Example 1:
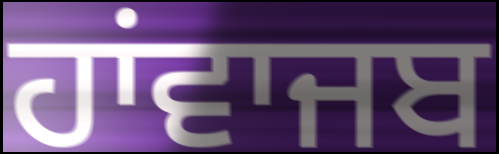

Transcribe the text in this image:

ਹਾਂਵਾਜਬ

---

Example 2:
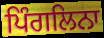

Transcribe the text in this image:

ਪਿੰਗਲਿਨਾ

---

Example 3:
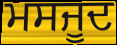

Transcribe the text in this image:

ਮਸਜੂਦ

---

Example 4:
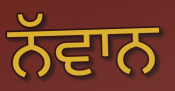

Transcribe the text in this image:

ਨੱਵਾਨ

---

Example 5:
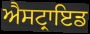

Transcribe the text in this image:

ਐਸਟ੍ਰਾਇਡ